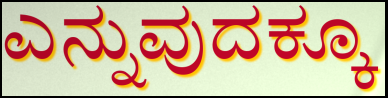
ಎನ್ನುವುದಕ್ಕೂ